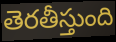
తెరతీస్తుంది